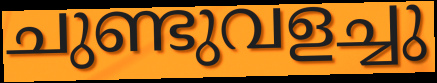
ചുണ്ടുവളച്ചു